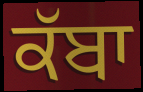
ਕੱਬਾ